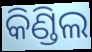
କିଣ୍ଡିଲ